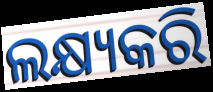
ଲକ୍ଷ୍ୟକରି